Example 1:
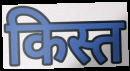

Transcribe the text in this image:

किस्त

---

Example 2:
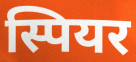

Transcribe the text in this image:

स्पियर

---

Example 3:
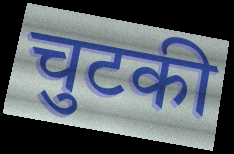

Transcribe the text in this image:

चुटकी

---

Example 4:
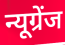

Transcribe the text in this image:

न्यूग्रेंज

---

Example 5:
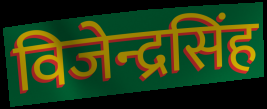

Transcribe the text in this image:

विजेन्द्रसिंह